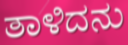
ತಾಳಿದನು